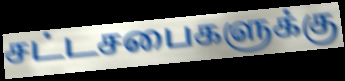
சட்டசபைகளுக்கு